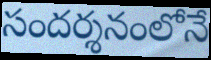
సందర్శనంలోనే